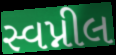
સ્વપ્નીલ